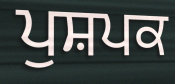
ਪੁਸ਼ਪਕ